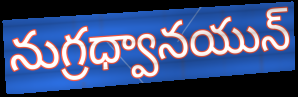
నుగ్రధ్వానయున్